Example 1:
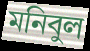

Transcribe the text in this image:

মনিবুল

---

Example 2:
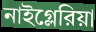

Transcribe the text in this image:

নাইগ্লেরিয়া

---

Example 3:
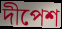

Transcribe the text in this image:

দীপেশ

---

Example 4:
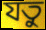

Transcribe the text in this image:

যতু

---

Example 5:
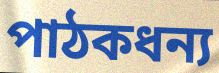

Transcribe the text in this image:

পাঠকধন্য